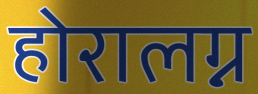
होरालग्न